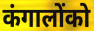
कंगालोंको